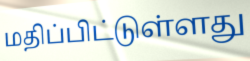
மதிப்பிட்டுள்ளது